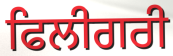
ਫਿਲੀਗਰੀ